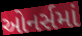
ઓનર્સમાં